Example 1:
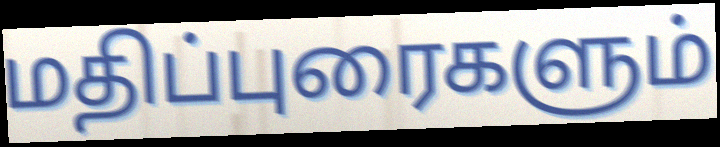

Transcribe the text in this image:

மதிப்புரைகளும்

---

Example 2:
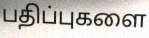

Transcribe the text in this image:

பதிப்புகளை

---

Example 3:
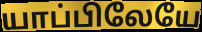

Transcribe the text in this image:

யாப்பிலேயே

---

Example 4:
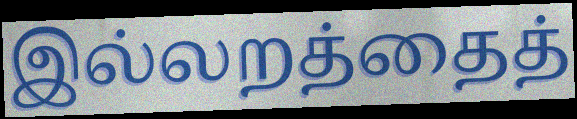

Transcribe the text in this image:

இல்லறத்தைத்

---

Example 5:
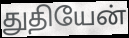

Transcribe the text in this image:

துதியேன்